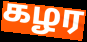
கழர